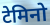
टेमिनो